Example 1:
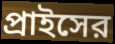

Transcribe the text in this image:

প্রাইসের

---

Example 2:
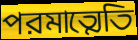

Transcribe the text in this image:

পরমাত্মেতি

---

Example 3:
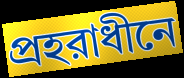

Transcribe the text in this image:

প্রহরাধীনে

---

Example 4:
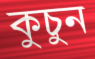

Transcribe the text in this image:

কুচুন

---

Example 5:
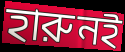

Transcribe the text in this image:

হারুনই